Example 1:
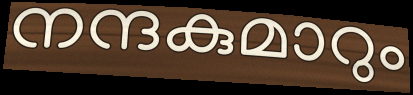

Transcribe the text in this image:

നന്ദകുമാറും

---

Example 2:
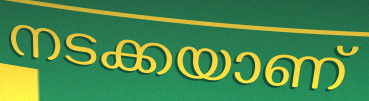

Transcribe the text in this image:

നടക്കയാണ്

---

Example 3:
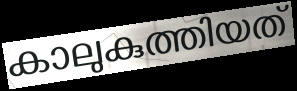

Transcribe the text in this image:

കാലുകുത്തിയത്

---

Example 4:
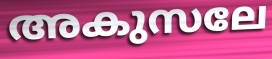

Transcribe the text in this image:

അകുസലേ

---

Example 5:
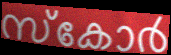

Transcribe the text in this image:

സ്കോർ